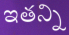
ఇతన్ని